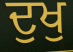
ਦੁਖੁ